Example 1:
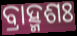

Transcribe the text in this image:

ବ୍ରାହ୍ମଶଃ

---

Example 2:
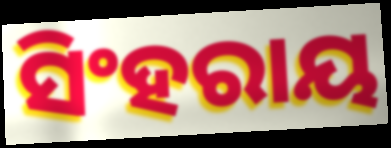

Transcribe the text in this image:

ସିଂହରାୟ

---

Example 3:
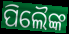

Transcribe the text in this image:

ପିଲୈଙ୍କ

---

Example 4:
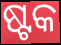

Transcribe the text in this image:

ଷ୍ଟକ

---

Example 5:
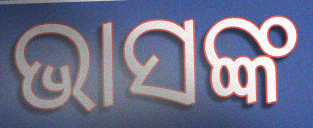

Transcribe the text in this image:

ଭାସଙ୍କ